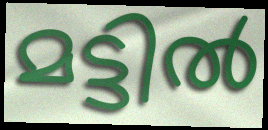
മട്ടിൽ